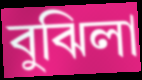
বুঝিলা